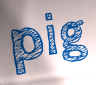
pig